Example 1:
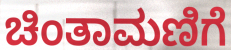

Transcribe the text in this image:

ಚಿಂತಾಮಣಿಗೆ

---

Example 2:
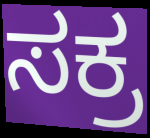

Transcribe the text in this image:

ಸಕ್ರ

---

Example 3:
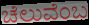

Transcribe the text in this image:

ಚೆಲುವೆಂಬ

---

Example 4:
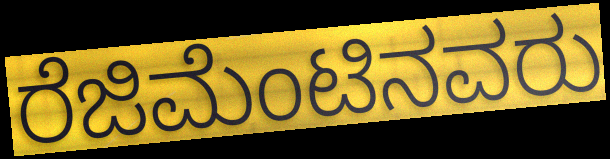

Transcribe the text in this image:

ರೆಜಿಮೆಂಟಿನವರು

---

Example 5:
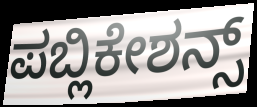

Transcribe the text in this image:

ಪಬ್ಲಿಕೇಶನ್ಸ್